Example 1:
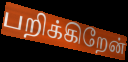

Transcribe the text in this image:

பறிக்கிறேன்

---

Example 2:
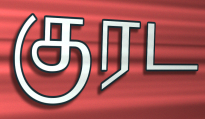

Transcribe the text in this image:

குரட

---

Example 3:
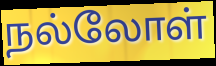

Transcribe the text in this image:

நல்லோள்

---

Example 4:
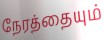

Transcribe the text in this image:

நேரத்தையும்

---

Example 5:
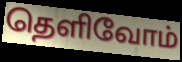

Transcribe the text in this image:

தெளிவோம்